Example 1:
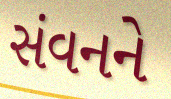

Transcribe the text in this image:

સંવનને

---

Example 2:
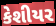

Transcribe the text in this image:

કેશીયર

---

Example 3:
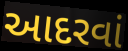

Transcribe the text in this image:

આદરવાં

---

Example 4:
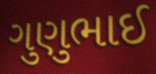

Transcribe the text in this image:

ગુણુભાઈ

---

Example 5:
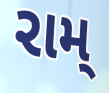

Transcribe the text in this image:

રામ્